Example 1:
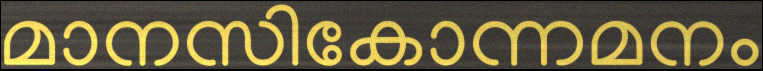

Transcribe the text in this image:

മാനസികോന്നമനം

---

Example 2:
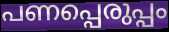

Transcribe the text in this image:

പണപ്പെരുപ്പം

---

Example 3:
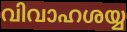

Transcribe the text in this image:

വിവാഹശയ്യ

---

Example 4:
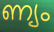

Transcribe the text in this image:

ണ്യം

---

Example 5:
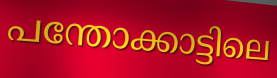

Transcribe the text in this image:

പന്തോക്കാട്ടിലെ